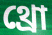
থ্রো